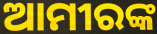
ଆମୀରଙ୍କ